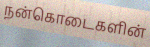
நன்கொடைகளின்